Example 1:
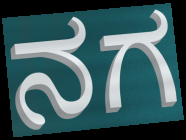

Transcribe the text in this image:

ನಗ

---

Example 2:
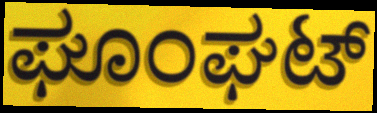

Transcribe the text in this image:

ಘೂಂಘಟ್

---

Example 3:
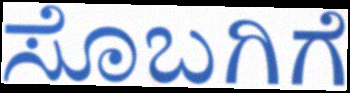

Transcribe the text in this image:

ಸೊಬಗಿಗೆ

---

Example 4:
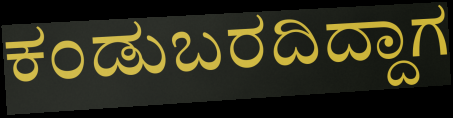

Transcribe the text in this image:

ಕಂಡುಬರದಿದ್ದಾಗ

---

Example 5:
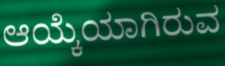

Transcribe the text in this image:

ಆಯ್ಕೆಯಾಗಿರುವ